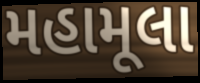
મહામૂલા